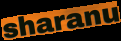
sharanu